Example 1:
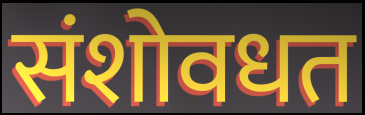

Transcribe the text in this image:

संशोवधत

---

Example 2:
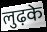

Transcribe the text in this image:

लुढ़के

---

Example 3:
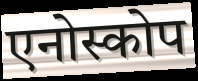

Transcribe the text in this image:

एनोस्कोप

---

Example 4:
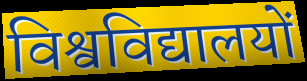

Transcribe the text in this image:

विश्वविद्यालयों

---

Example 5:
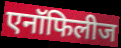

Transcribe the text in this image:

एनॉफिलीज